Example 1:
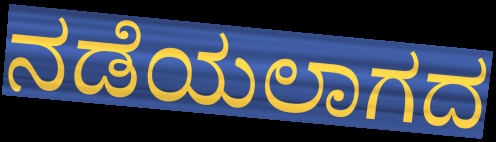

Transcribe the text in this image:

ನಡೆಯಲಾಗದ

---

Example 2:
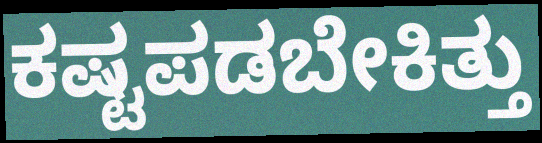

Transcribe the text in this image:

ಕಷ್ಟಪಡಬೇಕಿತ್ತು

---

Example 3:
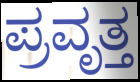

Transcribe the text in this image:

ಪ್ರವೃತ್ತ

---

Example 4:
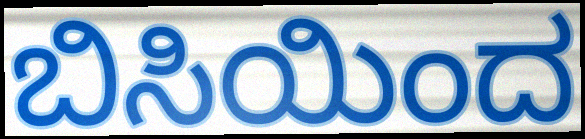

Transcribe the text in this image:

ಬಿಸಿಯಿಂದ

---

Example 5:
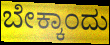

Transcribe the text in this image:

ಬೇಕ್ಕಾಂದು